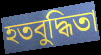
হতবুদ্ধিতা